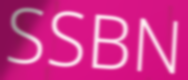
SSBN